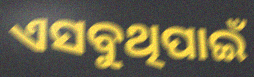
ଏସବୁଥିପାଇଁ